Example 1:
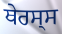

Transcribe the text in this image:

ਥੇਰਸ੍ਸ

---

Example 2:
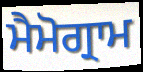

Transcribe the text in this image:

ਮੈਮੋਗ੍ਰਾਮ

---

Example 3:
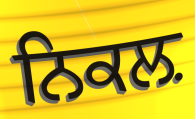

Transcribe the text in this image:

ਨਿਕਲ਼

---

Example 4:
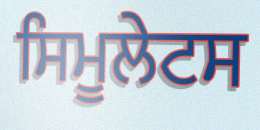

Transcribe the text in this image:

ਸਿਮੂਲੇਟਸ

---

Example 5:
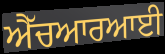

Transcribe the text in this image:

ਐੱਚਆਰਆਈ